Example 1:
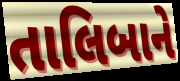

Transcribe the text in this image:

તાલિબાને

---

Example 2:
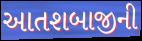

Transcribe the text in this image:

આતશબાજીની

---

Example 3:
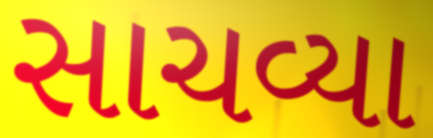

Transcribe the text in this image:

સાચવ્યા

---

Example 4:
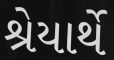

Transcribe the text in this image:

શ્રેયાર્થે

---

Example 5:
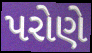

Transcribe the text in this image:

પરોણે